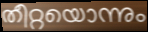
തീറ്റയൊന്നും